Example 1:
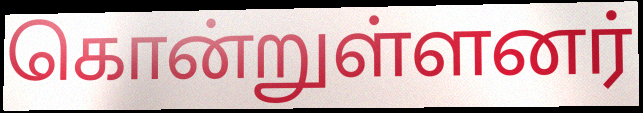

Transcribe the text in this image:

கொன்றுள்ளனர்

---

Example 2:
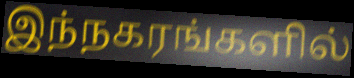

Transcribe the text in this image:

இந்நகரங்களில்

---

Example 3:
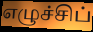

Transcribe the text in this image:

எழுச்சிப்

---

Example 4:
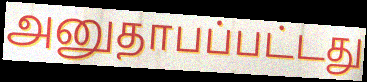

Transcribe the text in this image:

அனுதாபப்பட்டது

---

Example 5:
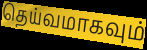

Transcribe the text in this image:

தெய்வமாகவும்